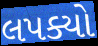
લપક્યો